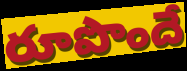
రూపొందే